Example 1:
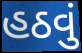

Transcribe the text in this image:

હઠવું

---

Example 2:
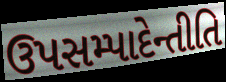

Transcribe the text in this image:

ઉપસમ્પાદેન્તીતિ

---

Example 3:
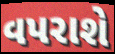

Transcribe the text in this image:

વપરાશે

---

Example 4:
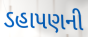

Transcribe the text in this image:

ડહાપણની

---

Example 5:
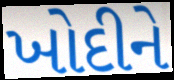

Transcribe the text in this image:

ખોદીને